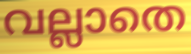
വല്ലാതെ